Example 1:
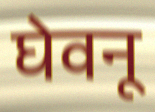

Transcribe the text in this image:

घेवनू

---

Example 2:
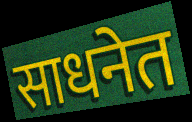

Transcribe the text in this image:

साधनेत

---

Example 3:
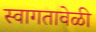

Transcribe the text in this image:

स्वागतावेळी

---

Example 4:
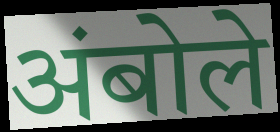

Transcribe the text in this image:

अंबोले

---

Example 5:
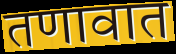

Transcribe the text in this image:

तणावात